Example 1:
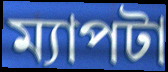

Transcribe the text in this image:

ম্যাপটা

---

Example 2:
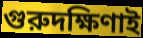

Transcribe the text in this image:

গুরুদক্ষিণাই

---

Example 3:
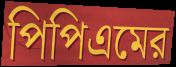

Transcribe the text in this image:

পিপিএমের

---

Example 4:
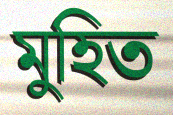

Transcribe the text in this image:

মুহিত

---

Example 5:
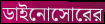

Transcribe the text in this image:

ডাইনোসোরের